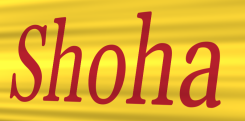
Shoha